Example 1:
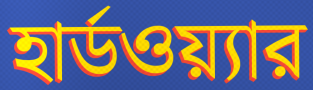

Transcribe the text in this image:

হার্ডওয়্যার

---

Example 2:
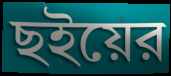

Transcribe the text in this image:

ছইয়ের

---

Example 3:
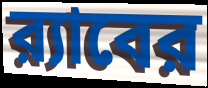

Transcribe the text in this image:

র‍্যাবের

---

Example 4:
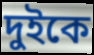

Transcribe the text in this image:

দুইকে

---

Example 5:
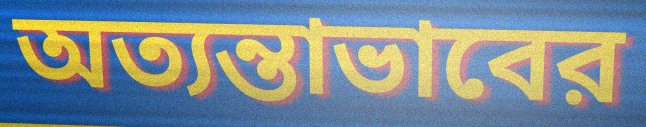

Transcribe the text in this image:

অত্যন্তাভাবের